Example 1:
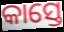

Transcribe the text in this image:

କାସ୍ତେ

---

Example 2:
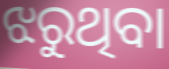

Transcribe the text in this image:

ଝରୁଥିବା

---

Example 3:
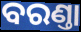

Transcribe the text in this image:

ବରଣ୍ତା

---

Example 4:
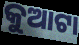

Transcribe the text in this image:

କୁଆଟା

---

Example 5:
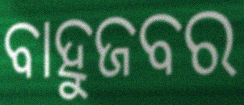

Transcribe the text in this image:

ବାହୁଜବର